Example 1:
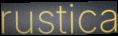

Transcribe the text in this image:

rustica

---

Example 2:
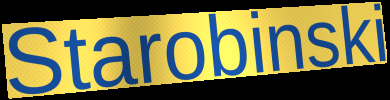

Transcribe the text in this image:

Starobinski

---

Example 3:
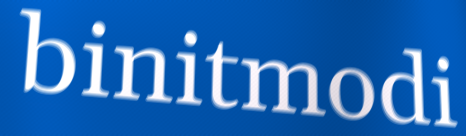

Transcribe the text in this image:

binitmodi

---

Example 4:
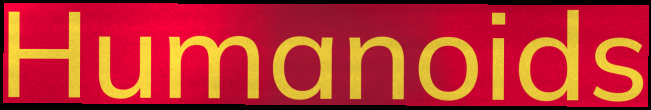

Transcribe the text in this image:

Humanoids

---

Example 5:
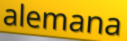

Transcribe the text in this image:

alemana